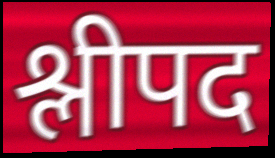
श्लीपद